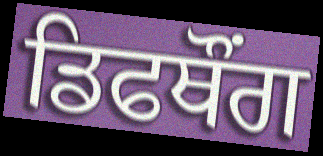
ਡਿਫਥੌਂਗ